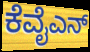
ಕೆವೈಎನ್